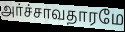
அர்ச்சாவதாரமே